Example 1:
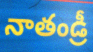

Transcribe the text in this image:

నాతండ్రీ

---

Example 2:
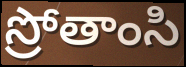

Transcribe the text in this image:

స్రోతాంసి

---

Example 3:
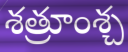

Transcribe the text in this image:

శత్రూంశ్చ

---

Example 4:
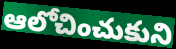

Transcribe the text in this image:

ఆలోచించుకుని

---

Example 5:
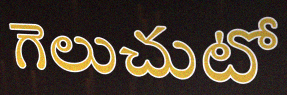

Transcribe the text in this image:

గెలుచుటో